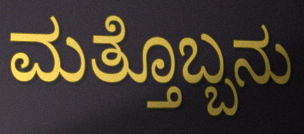
ಮತ್ತೊಬ್ಬನು